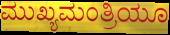
ಮುಖ್ಯಮಂತ್ರಿಯೂ